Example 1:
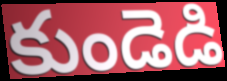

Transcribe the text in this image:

కుండెడి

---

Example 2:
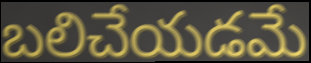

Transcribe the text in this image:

బలిచేయడమే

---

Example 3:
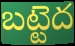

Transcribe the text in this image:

బట్టెద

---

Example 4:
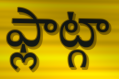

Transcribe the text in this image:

ఫ్లాట్గా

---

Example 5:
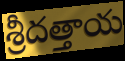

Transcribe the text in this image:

శ్రీదత్తాయ